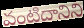
వంటిదానిని